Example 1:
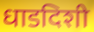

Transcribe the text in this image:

धाडदिशी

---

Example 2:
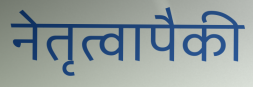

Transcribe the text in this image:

नेतृत्वापैकी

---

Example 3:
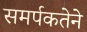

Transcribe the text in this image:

समर्पकतेने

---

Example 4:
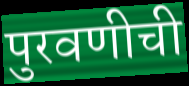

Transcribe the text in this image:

पुरवणीची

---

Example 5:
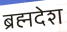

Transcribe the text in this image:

ब्रह्मदेश